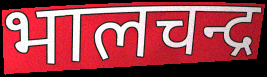
भालचन्द्र